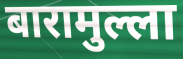
बारामुल्ला